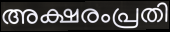
അക്ഷരംപ്രതി